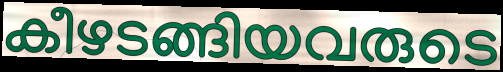
കീഴടങ്ങിയവരുടെ